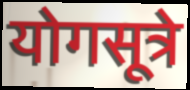
योगसूत्रे